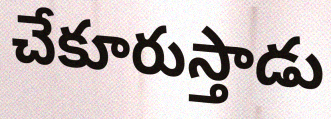
చేకూరుస్తాడు